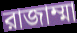
রাজাম্মা